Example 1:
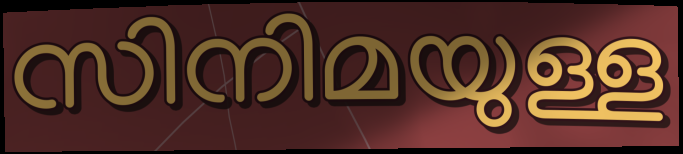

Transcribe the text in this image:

സിനിമയുള്ള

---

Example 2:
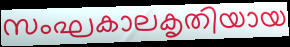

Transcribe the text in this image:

സംഘകാലകൃതിയായ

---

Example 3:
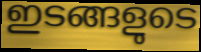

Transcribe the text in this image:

ഇടങ്ങളുടെ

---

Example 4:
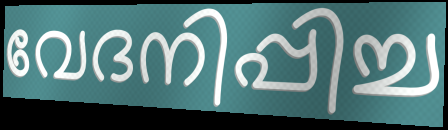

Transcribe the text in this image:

വേദനിപ്പിച്ച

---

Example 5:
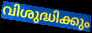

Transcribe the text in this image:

വിശുദ്ധിക്കും